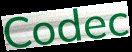
Codec